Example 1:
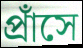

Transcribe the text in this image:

প্রাঁসে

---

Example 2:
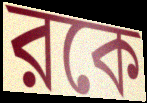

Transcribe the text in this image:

রকে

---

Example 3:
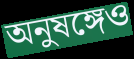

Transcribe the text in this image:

অনুষঙ্গেও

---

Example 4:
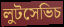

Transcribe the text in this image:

লুটসেভিচ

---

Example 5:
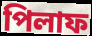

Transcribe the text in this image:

পিলাফ